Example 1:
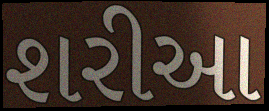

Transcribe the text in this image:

શરીઆ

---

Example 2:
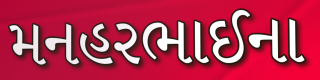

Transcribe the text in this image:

મનહરભાઈના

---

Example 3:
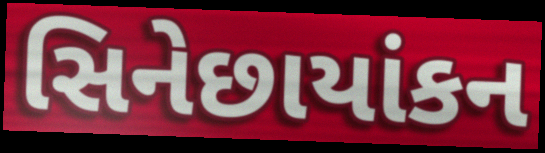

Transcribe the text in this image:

સિનેછાયાંકન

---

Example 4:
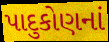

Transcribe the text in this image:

પાદુકોણનાં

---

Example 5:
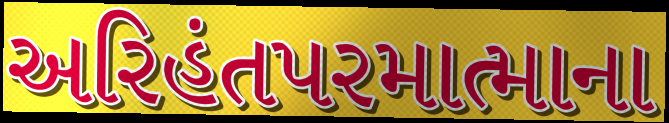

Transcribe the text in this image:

અરિહંતપરમાત્માના